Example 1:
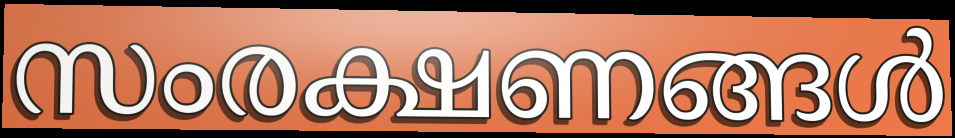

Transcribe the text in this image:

സംരക്ഷണങ്ങൾ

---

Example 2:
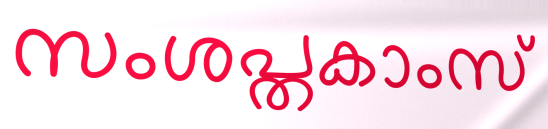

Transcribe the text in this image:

സംശപ്തകാംസ്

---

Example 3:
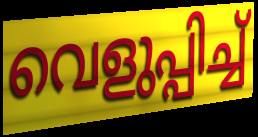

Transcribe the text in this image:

വെളുപ്പിച്ച്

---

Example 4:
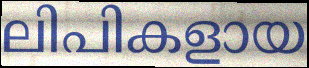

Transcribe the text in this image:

ലിപികളായ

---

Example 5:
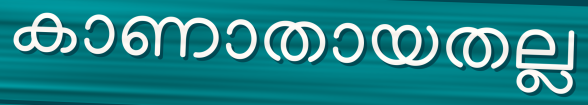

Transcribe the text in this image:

കാണാതായതല്ല